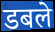
डबले